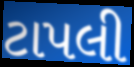
ટાપલી